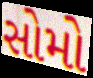
સોમો